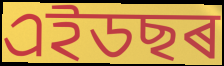
এইডছৰ